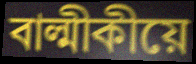
বাল্মীকীয়ে